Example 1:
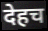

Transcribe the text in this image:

देहच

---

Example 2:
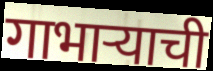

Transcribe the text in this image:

गाभार्‍याची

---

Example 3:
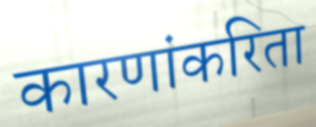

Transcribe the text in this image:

कारणांकरिता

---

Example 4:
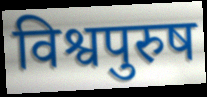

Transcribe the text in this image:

विश्वपुरुष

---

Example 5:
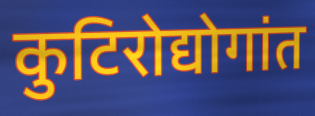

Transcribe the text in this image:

कुटिरोद्योगांत